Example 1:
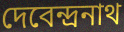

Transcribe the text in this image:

দেবেন্দ্রনাথ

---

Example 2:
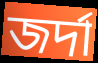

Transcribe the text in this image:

জর্দা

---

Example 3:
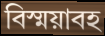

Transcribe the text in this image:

বিস্ময়াবহ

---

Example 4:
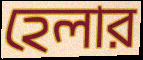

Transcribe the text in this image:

হেলার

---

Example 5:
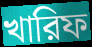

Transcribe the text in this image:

খারিফ